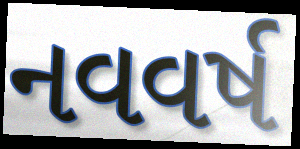
નવવર્ષ